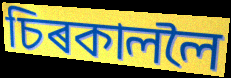
চিৰকাললৈ